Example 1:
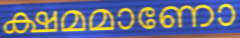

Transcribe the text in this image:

ക്ഷമമാണോ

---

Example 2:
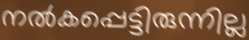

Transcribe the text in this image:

നൽകപ്പെട്ടിരുന്നില്ല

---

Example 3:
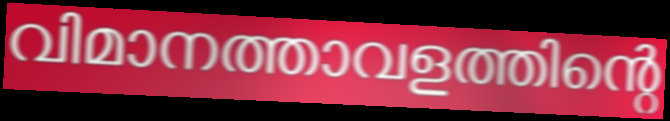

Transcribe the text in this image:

വിമാനത്താവളത്തിന്റെ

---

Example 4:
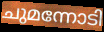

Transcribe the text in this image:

ചുമന്നോടി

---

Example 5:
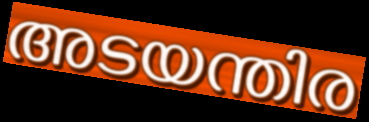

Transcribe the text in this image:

അടയന്തിര